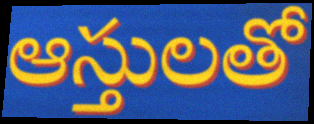
ఆస్తులతో